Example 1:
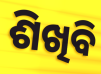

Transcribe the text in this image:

ଶିଖିବି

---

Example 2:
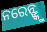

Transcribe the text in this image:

ନରେନ୍ଙ୍କୁ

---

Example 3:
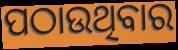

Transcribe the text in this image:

ପଠାଉଥିବାର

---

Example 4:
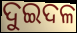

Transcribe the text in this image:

ଦୁଇଦଳ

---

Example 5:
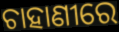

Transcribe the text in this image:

ଚାହାଣୀରେ